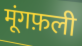
मूंगफ़ली